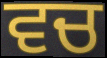
ਵਚ